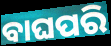
ବାଘପରି